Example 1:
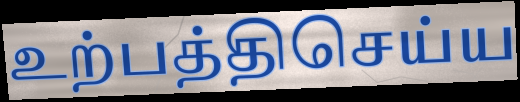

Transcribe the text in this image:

உற்பத்திசெய்ய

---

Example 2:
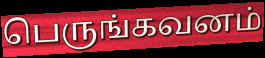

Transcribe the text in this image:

பெருங்கவனம்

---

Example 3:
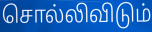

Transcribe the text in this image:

சொல்லிவிடும்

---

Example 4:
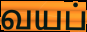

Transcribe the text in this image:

வயப்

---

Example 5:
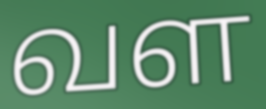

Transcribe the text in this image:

வள